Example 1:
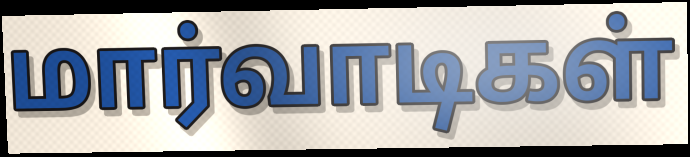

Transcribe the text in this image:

மார்வாடிகள்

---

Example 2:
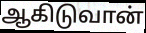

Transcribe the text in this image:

ஆகிடுவான்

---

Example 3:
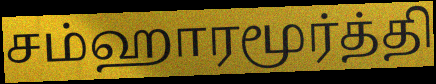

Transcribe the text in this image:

சம்ஹாரமூர்த்தி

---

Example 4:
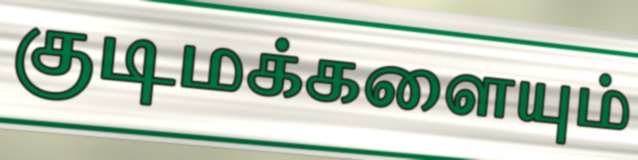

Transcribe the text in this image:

குடிமக்களையும்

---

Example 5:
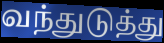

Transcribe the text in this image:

வந்துடுத்து